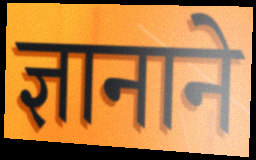
ज्ञानाने